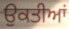
ਉਕਤੀਆਂ